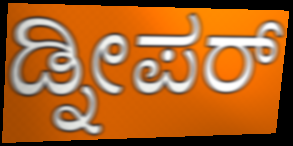
ಡ್ನೀಪರ್